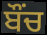
ਬੌਂਚ